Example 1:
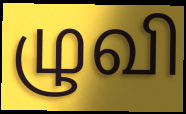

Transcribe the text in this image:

ழுவி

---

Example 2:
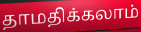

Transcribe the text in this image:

தாமதிக்கலாம்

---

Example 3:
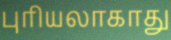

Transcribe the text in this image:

புரியலாகாது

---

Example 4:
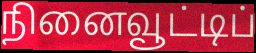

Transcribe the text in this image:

நினைவூட்டிப்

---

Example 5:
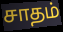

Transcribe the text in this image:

சாதம்